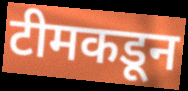
टीमकडून